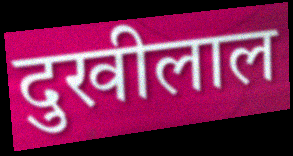
दुखीलाल